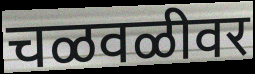
चळवळीवर